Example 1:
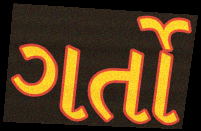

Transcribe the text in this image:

ગર્તો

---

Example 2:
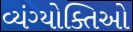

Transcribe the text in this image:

વ્યંગ્યોક્તિઓ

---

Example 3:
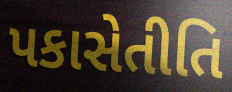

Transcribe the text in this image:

પકાસેતીતિ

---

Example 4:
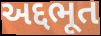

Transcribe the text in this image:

અદ્દભૂત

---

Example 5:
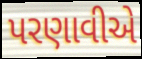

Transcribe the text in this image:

પરણાવીએ